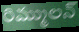
రిమ్ములన్